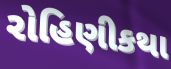
રોહિણીકથા